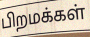
பிறமக்கள்